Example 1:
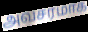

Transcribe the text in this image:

அவசரமாக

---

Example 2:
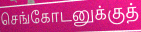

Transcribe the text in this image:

செங்கோடனுக்குத்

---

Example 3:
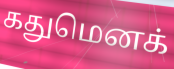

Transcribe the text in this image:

கதுமெனக்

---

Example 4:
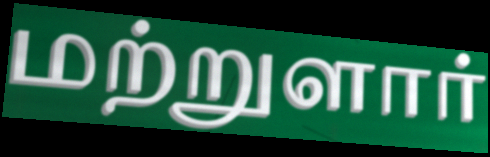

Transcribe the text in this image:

மற்றுளார்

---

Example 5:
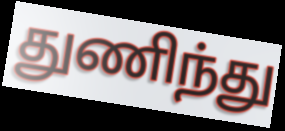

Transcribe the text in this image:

துணிந்து